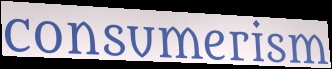
consumerism